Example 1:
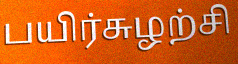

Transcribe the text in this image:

பயிர்சுழற்சி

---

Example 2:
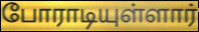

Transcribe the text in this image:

போராடியுள்ளார்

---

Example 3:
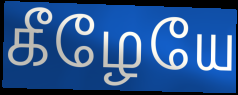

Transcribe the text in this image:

கீழேயே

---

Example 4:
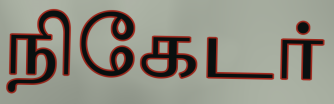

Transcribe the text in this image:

நிகேடர்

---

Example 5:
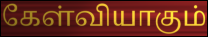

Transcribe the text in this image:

கேள்வியாகும்